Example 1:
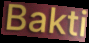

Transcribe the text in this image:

Bakti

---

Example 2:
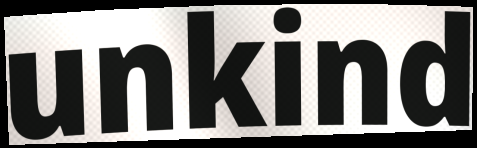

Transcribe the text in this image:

unkind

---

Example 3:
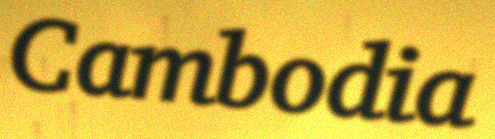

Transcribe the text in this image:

Cambodia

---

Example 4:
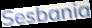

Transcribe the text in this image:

Sesbania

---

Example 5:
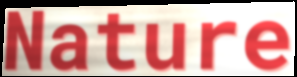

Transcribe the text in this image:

Nature